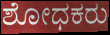
ಶೋಧಕರು